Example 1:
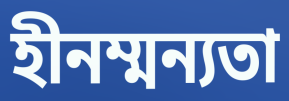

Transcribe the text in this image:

হীনম্মন্যতা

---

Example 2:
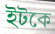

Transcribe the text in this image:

ইটকে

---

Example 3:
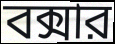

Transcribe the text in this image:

বক্সার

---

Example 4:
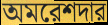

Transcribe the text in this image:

অমরেশদার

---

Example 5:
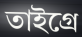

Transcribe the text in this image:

তাইগ্রে